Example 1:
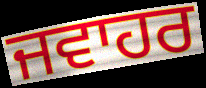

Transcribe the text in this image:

ਜਵਾਹਰ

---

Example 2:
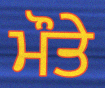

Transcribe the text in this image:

ਮੌਤੇ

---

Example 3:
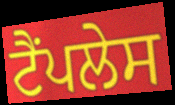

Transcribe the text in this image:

ਟੈਂਪਲੇਸ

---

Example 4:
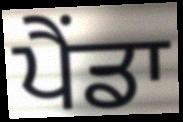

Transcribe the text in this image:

ਪੈਂਡਾ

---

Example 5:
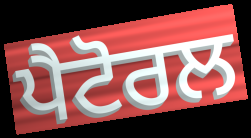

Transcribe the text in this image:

ਪੈਟੋਰਲ